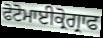
ਫੋਟੋਮਾਈਕ੍ਰੋਗ੍ਰਾਫ